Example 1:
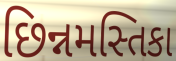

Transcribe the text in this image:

છિન્નમસ્તિકા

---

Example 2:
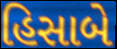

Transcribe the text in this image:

હિસાબે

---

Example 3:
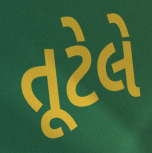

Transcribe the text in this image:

તૂટેલે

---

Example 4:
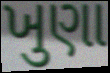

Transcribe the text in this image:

ખુણા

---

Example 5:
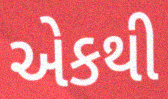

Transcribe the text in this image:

એકથી